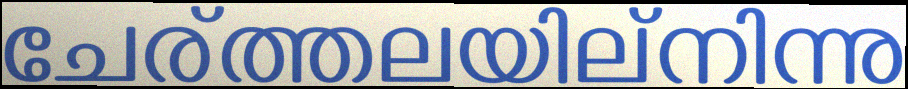
ചേര്ത്തലയില്നിന്നു